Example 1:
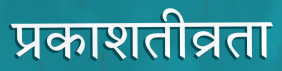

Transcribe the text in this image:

प्रकाशतीव्रता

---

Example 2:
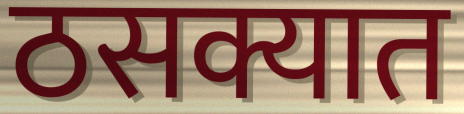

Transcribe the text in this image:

ठसक्यात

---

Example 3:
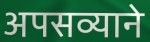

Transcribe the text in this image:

अपसव्याने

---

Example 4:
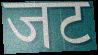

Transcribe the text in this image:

जट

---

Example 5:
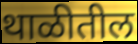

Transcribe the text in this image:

थाळीतील